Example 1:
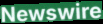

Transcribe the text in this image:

Newswire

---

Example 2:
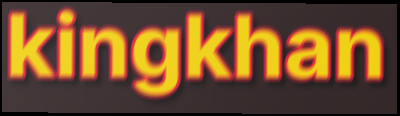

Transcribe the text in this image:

kingkhan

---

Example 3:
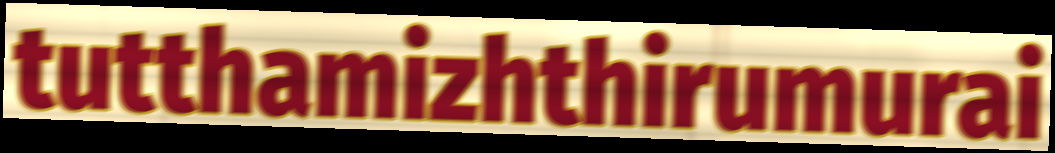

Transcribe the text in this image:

tutthamizhthirumurai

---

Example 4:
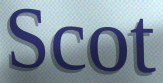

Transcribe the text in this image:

Scot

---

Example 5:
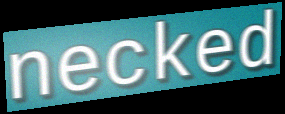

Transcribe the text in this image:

necked